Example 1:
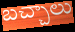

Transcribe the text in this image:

బచ్చాలు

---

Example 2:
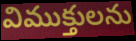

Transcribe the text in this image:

విముక్తులను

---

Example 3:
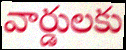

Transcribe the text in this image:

వార్డులకు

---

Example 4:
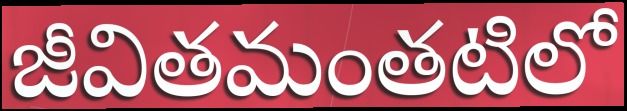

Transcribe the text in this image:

జీవితమంతటిలో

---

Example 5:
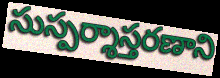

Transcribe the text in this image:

సుస్పర్శాస్తరణాని